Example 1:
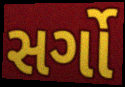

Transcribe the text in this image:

સર્ગો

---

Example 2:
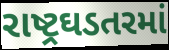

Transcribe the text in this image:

રાષ્ટ્રઘડતરમાં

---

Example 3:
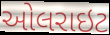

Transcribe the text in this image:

ઓલરાઇટ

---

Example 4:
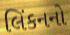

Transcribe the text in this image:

લિંકનનો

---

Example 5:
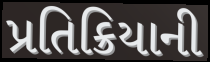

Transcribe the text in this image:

પ્રતિક્રિયાની